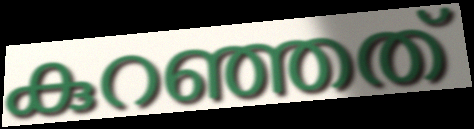
കുറഞ്ഞത്